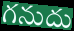
గనుదు